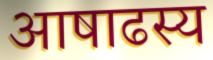
आषाढस्य